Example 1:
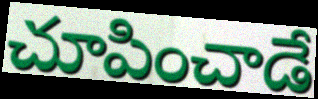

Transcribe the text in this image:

చూపించాడే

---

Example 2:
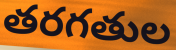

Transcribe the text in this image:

తరగతుల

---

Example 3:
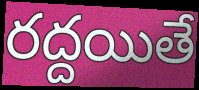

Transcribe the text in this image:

రద్దయితే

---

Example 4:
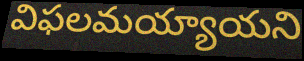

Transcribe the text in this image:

విఫలమయ్యాయని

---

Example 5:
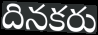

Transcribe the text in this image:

దినకరు